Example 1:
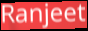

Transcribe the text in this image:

Ranjeet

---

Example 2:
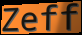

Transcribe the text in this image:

Zeff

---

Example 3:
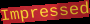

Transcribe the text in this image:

Impressed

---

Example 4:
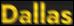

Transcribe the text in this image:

Dallas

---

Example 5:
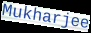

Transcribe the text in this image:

Mukharjee